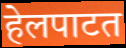
हेलपाटत